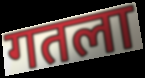
गतला